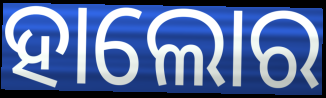
ହାଲୋର